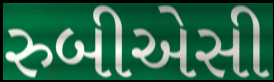
રુબીએસી